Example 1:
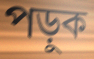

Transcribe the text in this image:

পড়ুক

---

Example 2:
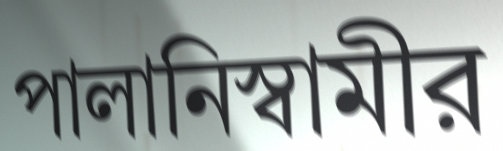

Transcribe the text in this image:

পালানিস্বামীর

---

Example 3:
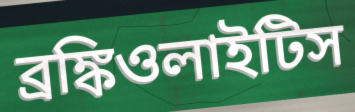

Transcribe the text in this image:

ব্রঙ্কিওলাইটিস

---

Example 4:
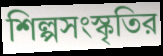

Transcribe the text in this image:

শিল্পসংস্কৃতির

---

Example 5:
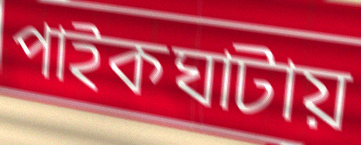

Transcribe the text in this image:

পাইকঘাটায়